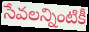
సేవలన్నింటికీ